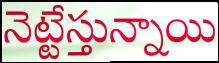
నెట్టేస్తున్నాయి